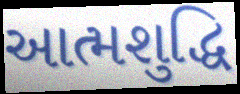
આત્મશુદ્ધિ